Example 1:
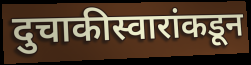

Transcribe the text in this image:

दुचाकीस्वारांकडून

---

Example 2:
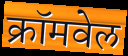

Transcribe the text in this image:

क्रॉमवेल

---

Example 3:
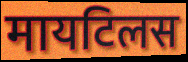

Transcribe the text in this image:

मायटिलस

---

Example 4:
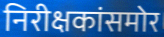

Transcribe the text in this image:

निरीक्षकांसमोर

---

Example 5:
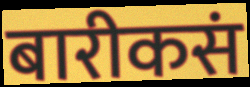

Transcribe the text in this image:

बारीकसं